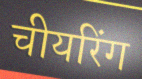
चीयरिंग